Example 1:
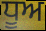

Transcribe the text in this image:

ਧੂਅ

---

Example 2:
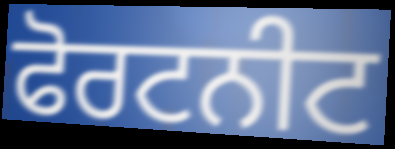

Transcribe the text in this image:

ਫੋਰਟਨੀਟ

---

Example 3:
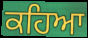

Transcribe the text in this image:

ਕਹਿਆ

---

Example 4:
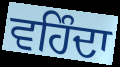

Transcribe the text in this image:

ਵਹਿੰਦਾ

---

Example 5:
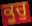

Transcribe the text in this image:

ਕੂਚੁ